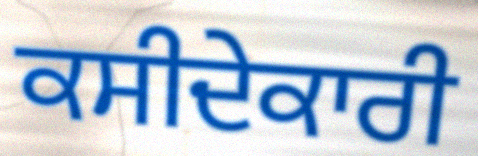
ਕਸੀਦੇਕਾਰੀ